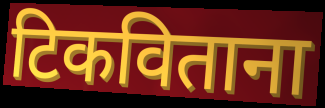
टिकविताना